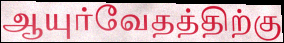
ஆயுர்வேதத்திற்கு